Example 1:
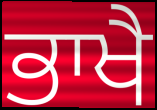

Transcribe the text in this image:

ਭਾਖੈ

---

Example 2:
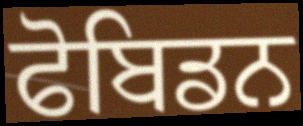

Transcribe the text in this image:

ਫੋਬਿਡਨ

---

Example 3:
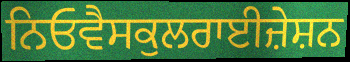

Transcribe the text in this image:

ਨਿਓਵੈਸਕੁਲਰਾਈਜ਼ੇਸ਼ਨ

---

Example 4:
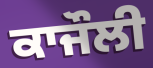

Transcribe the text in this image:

ਕਾਜੌਲੀ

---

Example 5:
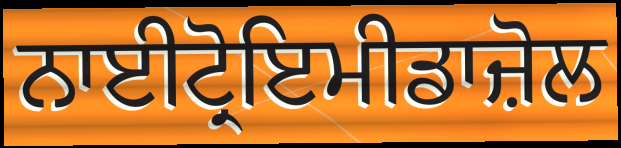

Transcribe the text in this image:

ਨਾਈਟ੍ਰੋਇਮੀਡਾਜ਼ੋਲ